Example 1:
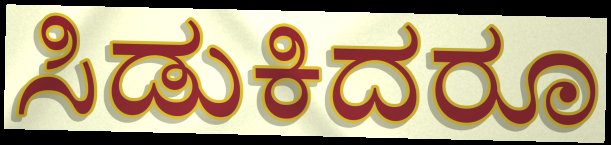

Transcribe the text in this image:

ಸಿಡುಕಿದರೂ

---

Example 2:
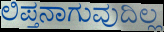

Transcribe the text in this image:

ಲಿಪ್ತನಾಗುವುದಿಲ್ಲ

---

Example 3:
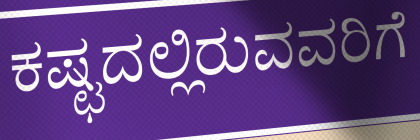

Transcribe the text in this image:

ಕಷ್ಟದಲ್ಲಿರುವವರಿಗೆ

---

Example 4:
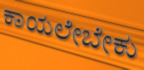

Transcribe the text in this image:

ಕಾಯಲೇಬೇಕು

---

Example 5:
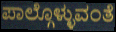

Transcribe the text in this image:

ಪಾಲ್ಗೊಳ್ಳುವಂತೆ